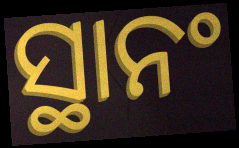
ସ୍ଥାନଂ